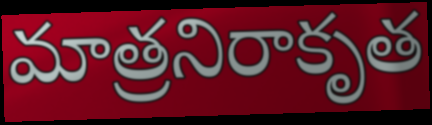
మాత్రనిరాకృత